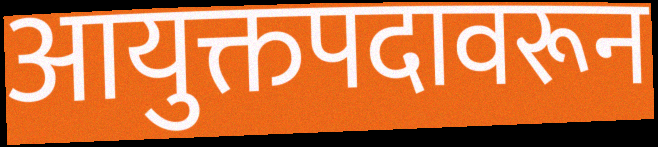
आयुक्तपदावरून